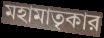
মহামাতৃকার